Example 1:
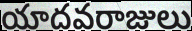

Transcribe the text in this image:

యాదవరాజులు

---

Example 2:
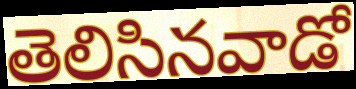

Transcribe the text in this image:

తెలిసినవాడో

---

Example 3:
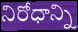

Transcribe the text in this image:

నిరోధాన్ని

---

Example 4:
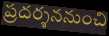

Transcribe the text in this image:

ప్రదర్శననుంచి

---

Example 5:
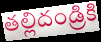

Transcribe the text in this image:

తల్లిదండ్రికి